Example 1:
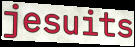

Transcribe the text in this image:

jesuits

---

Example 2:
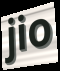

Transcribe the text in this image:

jio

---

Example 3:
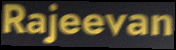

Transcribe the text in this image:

Rajeevan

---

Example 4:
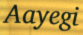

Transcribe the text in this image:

Aayegi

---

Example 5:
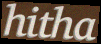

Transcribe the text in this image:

hitha